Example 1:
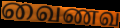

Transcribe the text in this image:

வைணவ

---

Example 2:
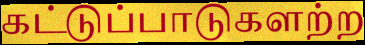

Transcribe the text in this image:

கட்டுப்பாடுகளற்ற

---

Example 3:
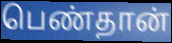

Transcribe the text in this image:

பெண்தான்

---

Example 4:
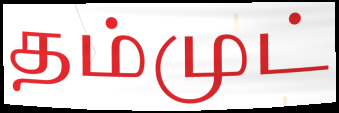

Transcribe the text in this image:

தம்முட்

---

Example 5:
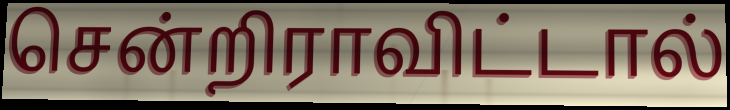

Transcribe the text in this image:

சென்றிராவிட்டால்